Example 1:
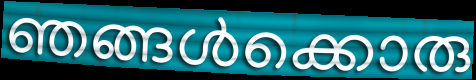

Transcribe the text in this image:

ഞങ്ങൾക്കൊരു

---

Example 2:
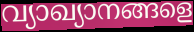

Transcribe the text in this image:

വ്യാഖ്യാനങ്ങളെ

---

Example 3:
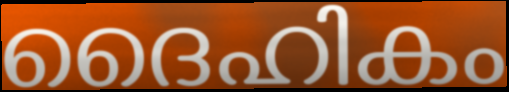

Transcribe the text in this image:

ദൈഹികം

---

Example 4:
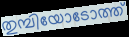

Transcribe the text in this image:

തുമ്പിയോടോത്ത്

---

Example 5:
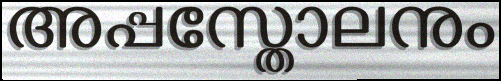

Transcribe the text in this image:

അപ്പസ്തോലനും